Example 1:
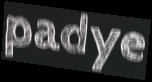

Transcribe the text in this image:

padye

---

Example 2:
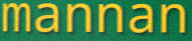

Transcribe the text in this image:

mannan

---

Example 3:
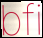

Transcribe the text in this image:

bfi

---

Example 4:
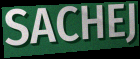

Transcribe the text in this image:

SACHEJ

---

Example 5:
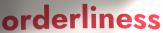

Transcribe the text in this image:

orderliness